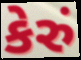
કેરું